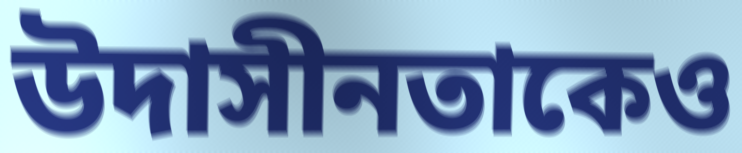
উদাসীনতাকেও